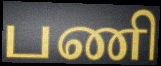
பணி